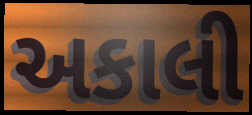
અકાલી